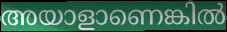
അയാളാണെങ്കിൽ